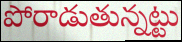
పోరాడుతున్నట్టు